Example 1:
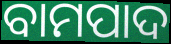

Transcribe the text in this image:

ବାମପାଦ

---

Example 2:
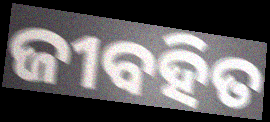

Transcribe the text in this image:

ଜୀବହିତ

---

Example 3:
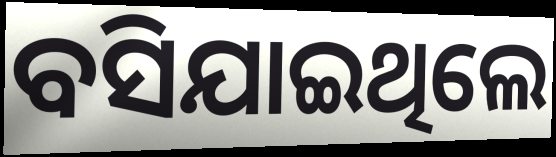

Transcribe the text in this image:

ବସିଯାଇଥିଲେ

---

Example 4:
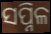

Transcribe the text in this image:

ସପ୍ନିଳ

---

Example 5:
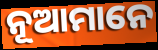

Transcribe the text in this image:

ନୂଆମାନେ